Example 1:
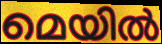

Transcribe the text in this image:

മെയിൽ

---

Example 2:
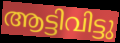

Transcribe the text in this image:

ആട്ടിവിട്ടു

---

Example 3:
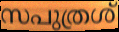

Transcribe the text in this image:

സപുത്രശ്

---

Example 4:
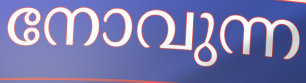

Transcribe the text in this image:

നോവുന്ന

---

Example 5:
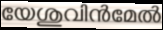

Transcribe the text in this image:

യേശുവിൻമേൽ